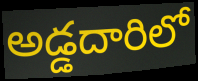
అడ్డదారిలో